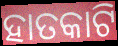
ହାତକାଟି